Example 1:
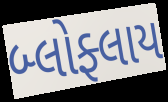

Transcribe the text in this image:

બ્લોફ્લાય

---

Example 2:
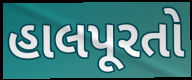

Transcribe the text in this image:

હાલપૂરતો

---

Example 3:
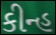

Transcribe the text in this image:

કીન્હ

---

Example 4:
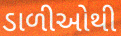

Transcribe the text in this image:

ડાળીઓથી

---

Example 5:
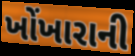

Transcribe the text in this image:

ખોંખારાની